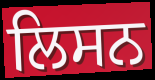
ਲਿਸਨ